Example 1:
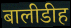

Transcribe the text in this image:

बालीडीह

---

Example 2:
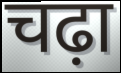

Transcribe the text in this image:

चढ़ा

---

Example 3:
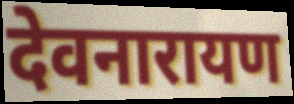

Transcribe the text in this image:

देवनारायण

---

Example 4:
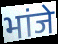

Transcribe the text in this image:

भांजे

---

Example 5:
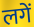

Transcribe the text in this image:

लगें